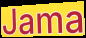
Jama